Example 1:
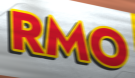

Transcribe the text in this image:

RMO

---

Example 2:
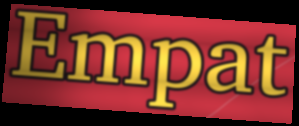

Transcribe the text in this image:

Empat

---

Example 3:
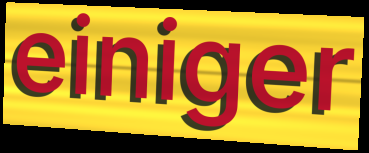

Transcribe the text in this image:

einiger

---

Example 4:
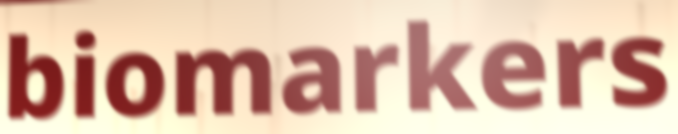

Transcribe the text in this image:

biomarkers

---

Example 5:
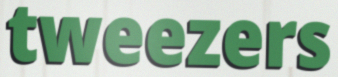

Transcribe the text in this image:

tweezers